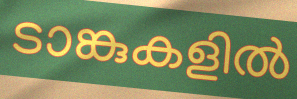
ടാങ്കുകളിൽ